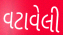
વટાવેલી